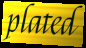
plated